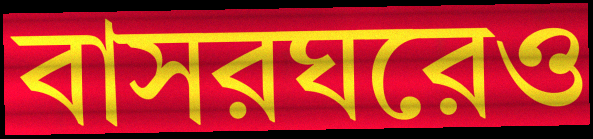
বাসরঘরেও